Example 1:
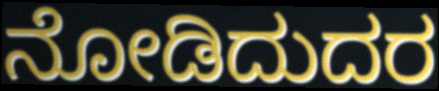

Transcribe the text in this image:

ನೋಡಿದುದರ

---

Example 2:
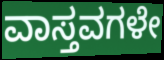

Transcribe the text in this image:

ವಾಸ್ತವಗಳೇ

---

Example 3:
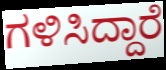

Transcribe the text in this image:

ಗಳಿಸಿದ್ದಾರೆ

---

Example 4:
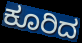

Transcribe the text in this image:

ಕೂರಿದ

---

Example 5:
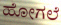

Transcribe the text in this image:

ಹೋಗಲೆ